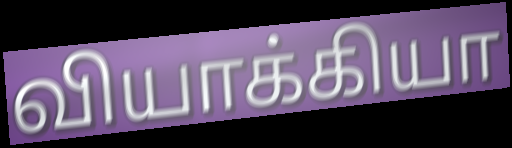
வியாக்கியா